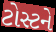
ટોસ્ટને